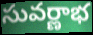
సువర్ణాభ